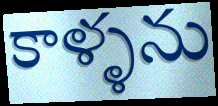
కాళ్ళను